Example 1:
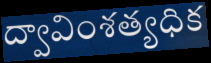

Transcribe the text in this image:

ద్వావింశత్యధిక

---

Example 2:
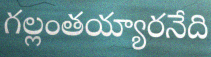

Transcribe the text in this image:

గల్లంతయ్యారనేది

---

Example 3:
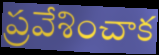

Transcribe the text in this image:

ప్రవేశించాక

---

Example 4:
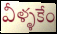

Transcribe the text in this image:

వీళ్ళకేం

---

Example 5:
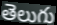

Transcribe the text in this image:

తెలుగు